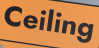
Ceiling